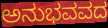
ಅನುಭವವದ